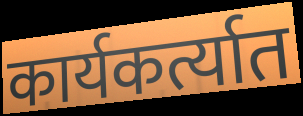
कार्यकर्त्यात